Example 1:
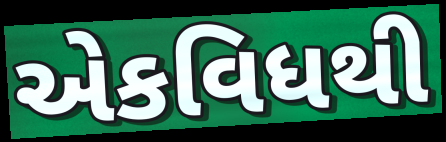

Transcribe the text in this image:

એકવિધથી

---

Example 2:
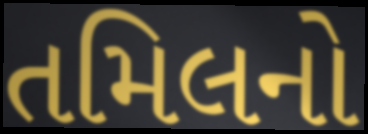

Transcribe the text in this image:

તમિલનો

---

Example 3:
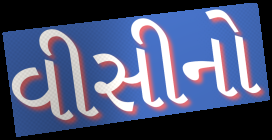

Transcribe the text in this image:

વીસીનો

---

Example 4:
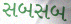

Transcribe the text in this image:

સબસબ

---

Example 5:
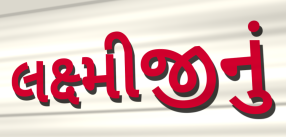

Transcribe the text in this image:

લક્ષ્મીજીનું